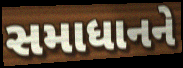
સમાધાનને